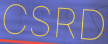
CSRD